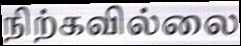
நிற்கவில்லை